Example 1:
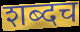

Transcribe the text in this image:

शब्दच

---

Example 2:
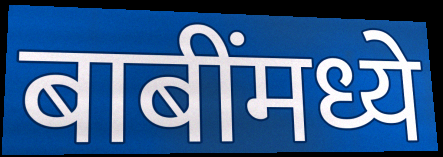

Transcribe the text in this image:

बाबींमध्ये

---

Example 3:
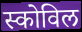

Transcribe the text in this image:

स्कोविल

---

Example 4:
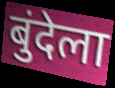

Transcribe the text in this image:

बुंदेला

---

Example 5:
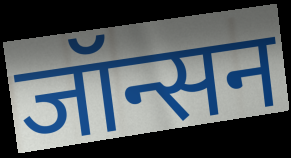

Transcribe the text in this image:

जॉन्सन